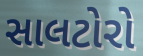
સાલટોરો